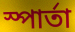
স্পার্তা